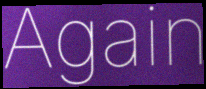
Again